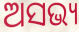
ଅସଭ୍ୟ